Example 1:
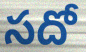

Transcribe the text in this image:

సదో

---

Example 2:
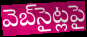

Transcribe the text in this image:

వెబ్‌సైట్లపై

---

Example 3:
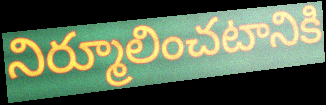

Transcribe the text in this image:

నిర్మూలించటానికి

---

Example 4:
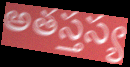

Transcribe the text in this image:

అతస్తస్య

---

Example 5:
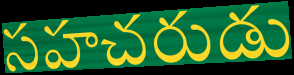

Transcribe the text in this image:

సహచరుడు